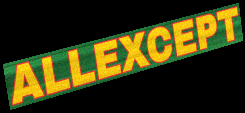
ALLEXCEPT